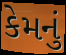
કેમનું